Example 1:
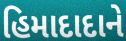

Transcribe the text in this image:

હિમાદાદાને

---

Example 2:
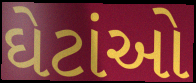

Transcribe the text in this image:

ઘેટાંઓ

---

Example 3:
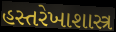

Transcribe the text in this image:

હસ્તરેખાશાસ્ત્ર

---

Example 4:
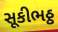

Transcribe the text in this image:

સૂકીભઠ્ઠ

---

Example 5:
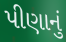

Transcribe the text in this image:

પીણાનું